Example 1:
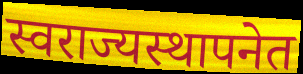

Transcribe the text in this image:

स्वराज्यस्थापनेत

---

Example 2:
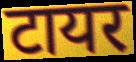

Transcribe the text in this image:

टायर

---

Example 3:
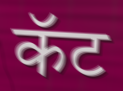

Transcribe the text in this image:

कॅट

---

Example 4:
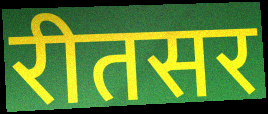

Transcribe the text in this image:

रीतसर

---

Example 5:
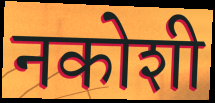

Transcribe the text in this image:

नकोशी